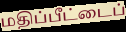
மதிப்பீட்டைப்